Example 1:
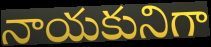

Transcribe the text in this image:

నాయకునిగా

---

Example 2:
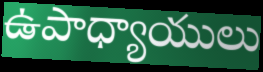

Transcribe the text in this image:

ఉపాధ్యాయులు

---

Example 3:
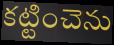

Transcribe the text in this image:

కట్టించెను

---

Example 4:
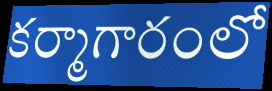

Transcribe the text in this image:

కర్మాగారంలో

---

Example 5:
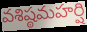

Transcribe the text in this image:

వశిష్ఠమహర్షి